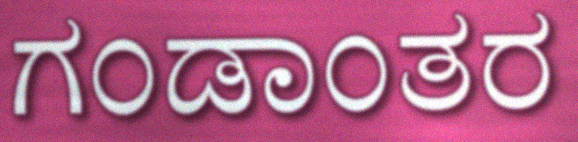
ಗಂಡಾಂತರ